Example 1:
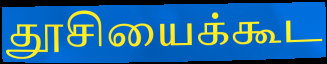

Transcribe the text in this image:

தூசியைக்கூட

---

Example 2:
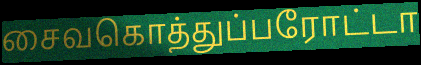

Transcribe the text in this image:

சைவகொத்துப்பரோட்டா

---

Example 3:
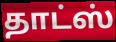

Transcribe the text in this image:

தாட்ஸ்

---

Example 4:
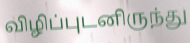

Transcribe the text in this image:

விழிப்புடனிருந்து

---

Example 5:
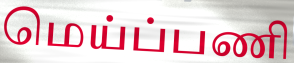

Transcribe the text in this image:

மெய்ப்பணி